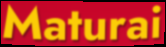
Maturai